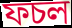
ফচল